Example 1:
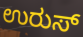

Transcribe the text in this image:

ಉರುಸ್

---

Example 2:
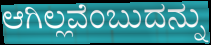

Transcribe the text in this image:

ಆಗಿಲ್ಲವೆಂಬುದನ್ನು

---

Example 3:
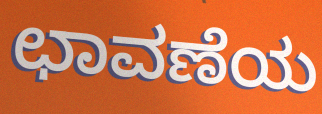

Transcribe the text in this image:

ಛಾವಣೆಯ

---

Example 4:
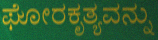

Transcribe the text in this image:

ಘೋರಕೃತ್ಯವನ್ನು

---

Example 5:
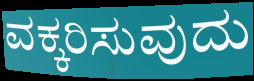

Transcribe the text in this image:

ವಕ್ಕರಿಸುವುದು